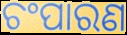
ଚଂପାରଣ